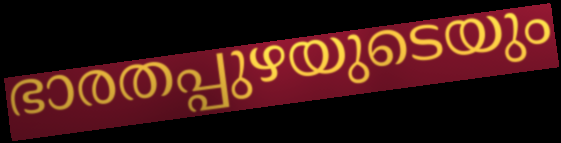
ഭാരതപ്പുഴയുടെയും